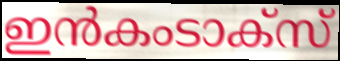
ഇൻകംടാക്സ്